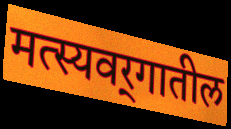
मत्स्यवर्गातील